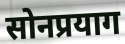
सोनप्रयाग